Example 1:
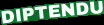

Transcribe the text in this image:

DIPTENDU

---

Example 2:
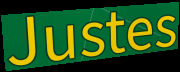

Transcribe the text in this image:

Justes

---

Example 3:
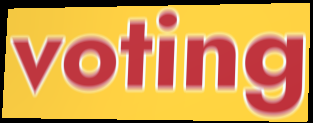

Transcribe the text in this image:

voting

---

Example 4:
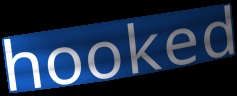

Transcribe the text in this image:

hooked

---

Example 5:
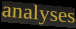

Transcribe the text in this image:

analyses